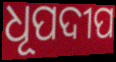
ଧୂପଦୀପ